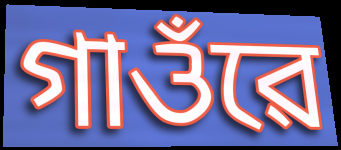
গাওঁৱে